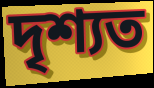
দৃশ্যত